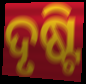
ଦୃଷ୍ଟି